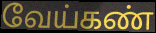
வேய்கண்